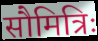
सौमित्रिः